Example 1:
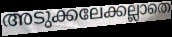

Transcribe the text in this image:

അടുക്കലേക്കല്ലാതെ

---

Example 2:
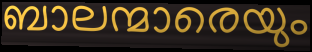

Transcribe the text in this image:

ബാലന്മാരെയും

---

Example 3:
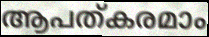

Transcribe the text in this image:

ആപത്കരമാം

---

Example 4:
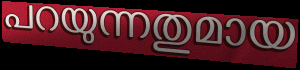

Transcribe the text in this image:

പറയുന്നതുമായ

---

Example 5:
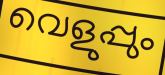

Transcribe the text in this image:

വെളുപ്പും